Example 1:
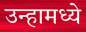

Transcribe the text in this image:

उन्हामध्ये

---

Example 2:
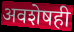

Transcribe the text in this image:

अवशेषही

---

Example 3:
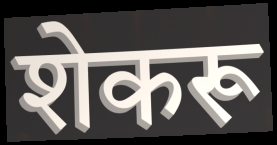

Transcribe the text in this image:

शेकरू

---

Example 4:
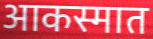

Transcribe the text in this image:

आकस्मात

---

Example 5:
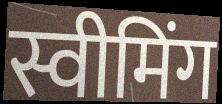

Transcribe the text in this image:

स्वीमिंग